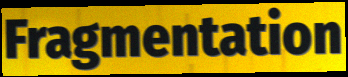
Fragmentation